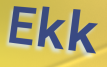
Ekk